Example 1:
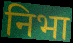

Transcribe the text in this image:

निभा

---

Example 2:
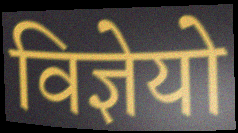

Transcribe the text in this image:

विज्ञेयो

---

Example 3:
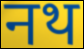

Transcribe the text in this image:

नथ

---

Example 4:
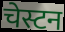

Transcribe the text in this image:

चेस्टन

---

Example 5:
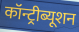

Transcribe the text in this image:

कॉन्ट्रीब्यूशन